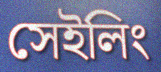
সেইলিং